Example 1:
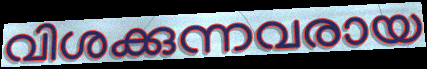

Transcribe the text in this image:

വിശക്കുന്നവരായ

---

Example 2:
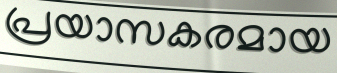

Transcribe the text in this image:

പ്രയാസകരമായ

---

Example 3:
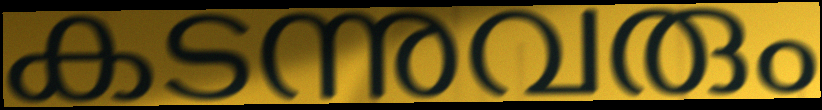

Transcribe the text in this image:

കടന്നുവരും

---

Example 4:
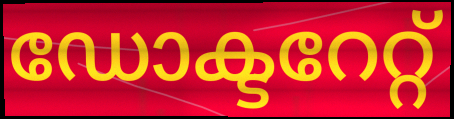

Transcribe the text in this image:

ഡോക്ടറേറ്റ്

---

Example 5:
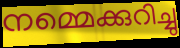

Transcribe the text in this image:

നമ്മെക്കുറിച്ചു